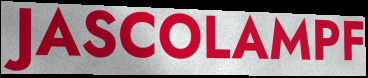
JASCOLAMPF